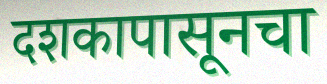
दशकापासूनचा